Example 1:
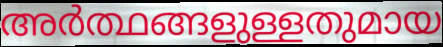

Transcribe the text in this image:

അർത്ഥങ്ങളുള്ളതുമായ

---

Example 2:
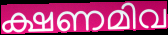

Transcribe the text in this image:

ക്ഷണമിവ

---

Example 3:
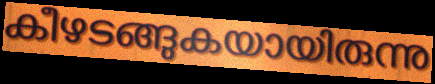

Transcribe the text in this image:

കീഴടങ്ങുകയായിരുന്നു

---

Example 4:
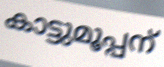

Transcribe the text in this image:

കാട്ടുമൂപ്പന്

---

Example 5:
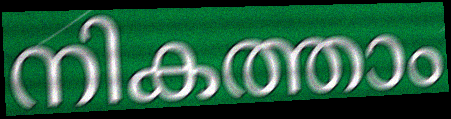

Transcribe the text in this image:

നികത്താം